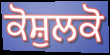
ਕੋਸ਼ੁਲਕੋ